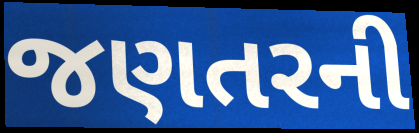
જણતરની